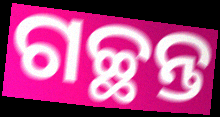
ଗଚ୍ଛନ୍ତ